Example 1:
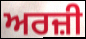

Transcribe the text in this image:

ਅਰਜ਼ੀ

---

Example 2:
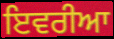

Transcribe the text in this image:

ਇਵਰੀਆ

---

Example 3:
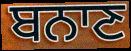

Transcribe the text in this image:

ਬਨਾਣ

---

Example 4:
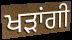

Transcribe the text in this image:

ਖੜਾਂਗੀ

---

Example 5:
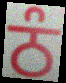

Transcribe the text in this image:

ਠੰ